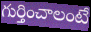
గుర్తించాలంటే